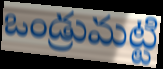
ఒండ్రుమట్టి